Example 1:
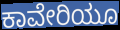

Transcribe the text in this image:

ಕಾವೇರಿಯೂ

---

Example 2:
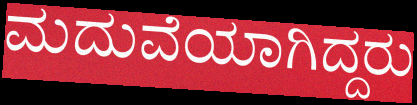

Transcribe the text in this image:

ಮದುವೆಯಾಗಿದ್ದರು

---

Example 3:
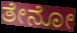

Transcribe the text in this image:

ತೇನೋ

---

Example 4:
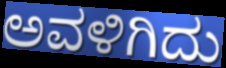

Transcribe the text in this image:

ಅವಳಿಗಿದು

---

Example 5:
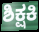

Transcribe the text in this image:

ಶಿಕ್ಷಕಿ